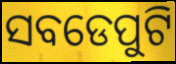
ସବଡେପୁଟି